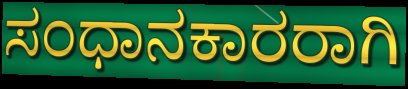
ಸಂಧಾನಕಾರರಾಗಿ